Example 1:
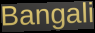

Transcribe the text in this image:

Bangali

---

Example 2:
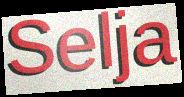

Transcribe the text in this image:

Selja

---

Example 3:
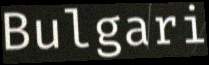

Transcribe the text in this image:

Bulgari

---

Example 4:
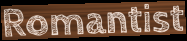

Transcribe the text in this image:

Romantist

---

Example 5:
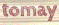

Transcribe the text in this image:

tomay